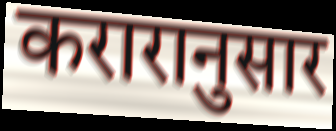
करारानुसार